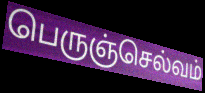
பெருஞ்செல்வம்